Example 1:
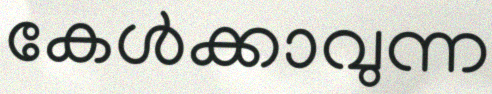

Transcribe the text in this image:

കേൾക്കാവുന്ന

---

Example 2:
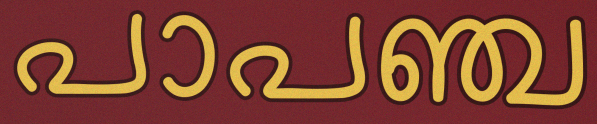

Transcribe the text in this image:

പാപഞ്ച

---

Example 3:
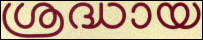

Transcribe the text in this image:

ശ്രദ്ധായ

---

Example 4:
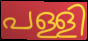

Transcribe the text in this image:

പള്ളി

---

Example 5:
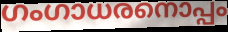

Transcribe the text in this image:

ഗംഗാധരനൊപ്പം